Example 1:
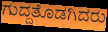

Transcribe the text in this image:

ಗುದ್ದತೊಡಗಿದರು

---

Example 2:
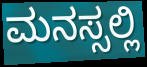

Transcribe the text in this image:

ಮನಸ್ಸಲ್ಲಿ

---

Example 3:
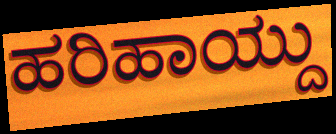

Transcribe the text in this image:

ಹರಿಹಾಯ್ದು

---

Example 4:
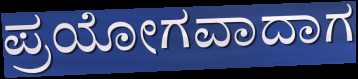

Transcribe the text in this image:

ಪ್ರಯೋಗವಾದಾಗ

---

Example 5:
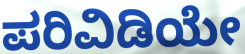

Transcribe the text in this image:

ಪರಿವಿಡಿಯೇ